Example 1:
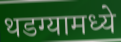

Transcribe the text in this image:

थडग्यामध्ये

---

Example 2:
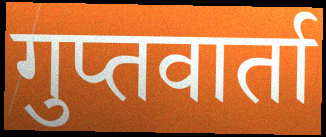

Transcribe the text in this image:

गुप्तवार्ता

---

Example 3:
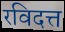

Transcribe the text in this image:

रविदत्त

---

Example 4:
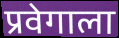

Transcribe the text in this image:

प्रवेगाला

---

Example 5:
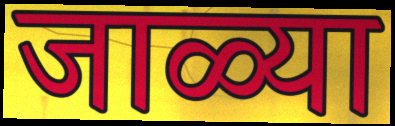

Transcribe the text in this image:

जाळ्या